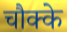
चौक्के